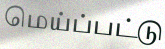
மெய்ப்பட்டு